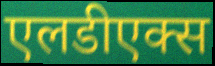
एलडीएक्स